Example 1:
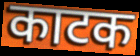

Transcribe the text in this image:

काटक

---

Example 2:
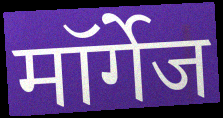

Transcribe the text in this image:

मॉर्गेज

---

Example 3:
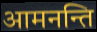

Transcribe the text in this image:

आमनन्ति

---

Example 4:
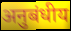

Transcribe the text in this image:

अनुबंधीय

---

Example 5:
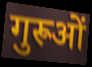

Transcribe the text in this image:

गुरूओं